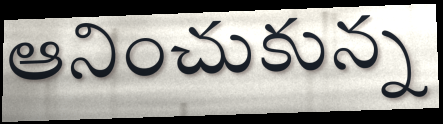
ఆనించుకున్న